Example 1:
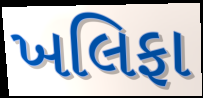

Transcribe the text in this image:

ખલિફા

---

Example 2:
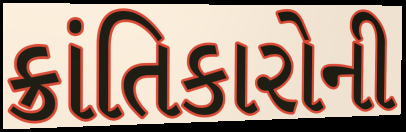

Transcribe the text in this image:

ક્રાંતિકારોની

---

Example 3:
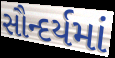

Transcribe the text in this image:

સૌન્દર્યમાં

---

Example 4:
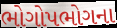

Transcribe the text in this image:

ભોગોપભોગના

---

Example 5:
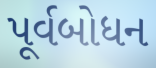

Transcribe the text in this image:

પૂર્વબોધન